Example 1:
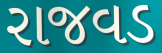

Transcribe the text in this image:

રાજવડ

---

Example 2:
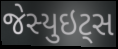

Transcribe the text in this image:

જેસ્યુઇટ્સ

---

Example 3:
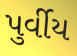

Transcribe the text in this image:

પુર્વીય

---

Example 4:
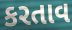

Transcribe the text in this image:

કરતાવ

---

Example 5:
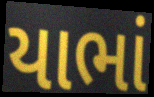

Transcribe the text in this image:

યાભાં